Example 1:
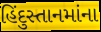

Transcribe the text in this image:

હિંદુસ્તાનમાંના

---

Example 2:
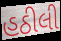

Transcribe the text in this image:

હઠીલી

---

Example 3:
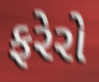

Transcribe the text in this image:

ફરેરો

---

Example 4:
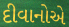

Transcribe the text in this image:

દીવાનોએ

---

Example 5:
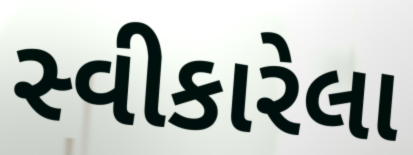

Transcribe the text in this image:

સ્વીકારેલા